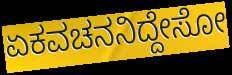
ಏಕವಚನನಿದ್ದೇಸೋ